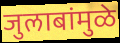
जुलाबांमुळे